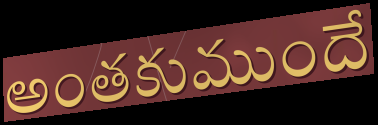
అంతకుముందే